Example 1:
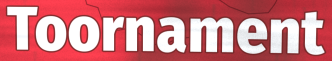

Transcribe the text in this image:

Toornament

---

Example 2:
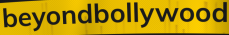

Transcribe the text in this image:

beyondbollywood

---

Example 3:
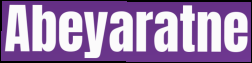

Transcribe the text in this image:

Abeyaratne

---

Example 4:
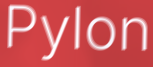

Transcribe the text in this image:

Pylon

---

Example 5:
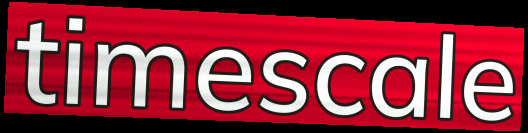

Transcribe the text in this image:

timescale